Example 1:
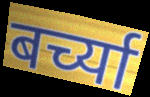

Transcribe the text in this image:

बर्च्या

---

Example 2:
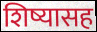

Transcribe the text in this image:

शिष्यासह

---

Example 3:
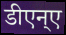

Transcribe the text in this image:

डीएन्ए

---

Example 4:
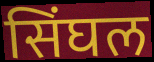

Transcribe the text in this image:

सिंघल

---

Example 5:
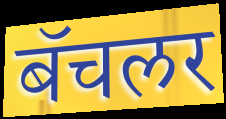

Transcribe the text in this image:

बॅचलर